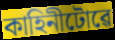
কাহিনীটোৱে